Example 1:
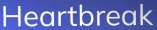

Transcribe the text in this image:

Heartbreak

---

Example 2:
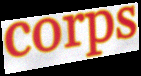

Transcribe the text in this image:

corps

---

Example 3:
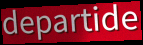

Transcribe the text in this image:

departide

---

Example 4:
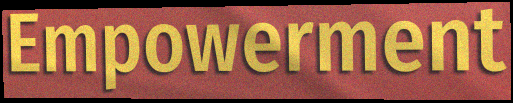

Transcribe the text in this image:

Empowerment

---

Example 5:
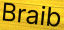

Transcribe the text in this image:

Braib